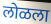
लोळला